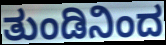
ತುಂಡಿನಿಂದ